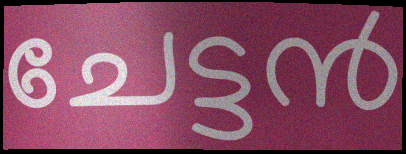
ചേട്ടൻ